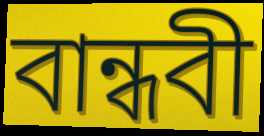
বান্ধবী